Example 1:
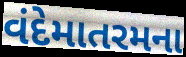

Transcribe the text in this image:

વંદેમાતરમના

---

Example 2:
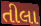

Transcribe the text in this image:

તીલા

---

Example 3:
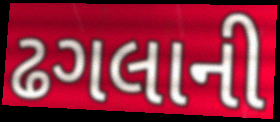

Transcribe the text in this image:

ઢગલાની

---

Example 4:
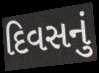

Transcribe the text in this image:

દિવસનું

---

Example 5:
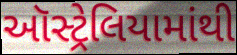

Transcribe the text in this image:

ઑસ્ટ્રેલિયામાંથી